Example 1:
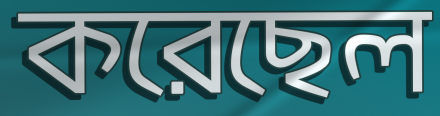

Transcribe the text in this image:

করেছেল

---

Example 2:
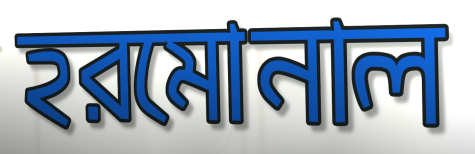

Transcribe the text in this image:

হরমোনাল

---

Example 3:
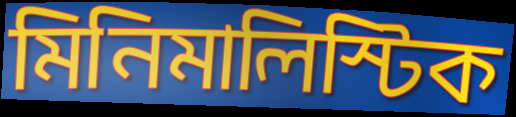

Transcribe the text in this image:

মিনিমালিস্টিক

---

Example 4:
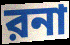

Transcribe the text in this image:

রনা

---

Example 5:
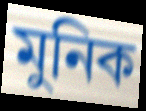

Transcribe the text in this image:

মুনিক